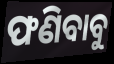
ଫଣିବାବୁ